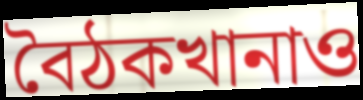
বৈঠকখানাও